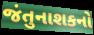
જંતુનાશકનો